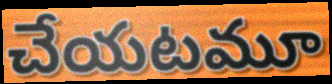
చేయటమూ